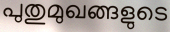
പുതുമുഖങ്ങളുടെ